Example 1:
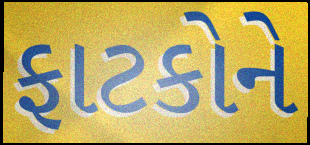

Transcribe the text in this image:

ફાટકોને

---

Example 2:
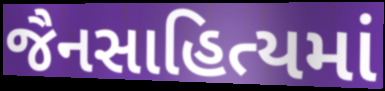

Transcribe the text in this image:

જૈનસાહિત્યમાં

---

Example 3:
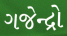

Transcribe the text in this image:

ગજેન્દ્રો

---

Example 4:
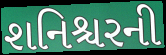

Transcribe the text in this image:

શનિશ્ચરની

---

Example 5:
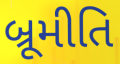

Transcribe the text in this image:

બ્રૂમીતિ